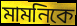
মামনিকে